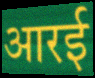
आरई